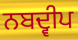
ਨਬਦ੍ਵੀਪ